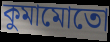
কুমামোতো